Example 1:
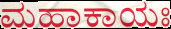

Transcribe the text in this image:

ಮಹಾಕಾಯಃ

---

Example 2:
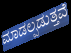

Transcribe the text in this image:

ಮಾಡಲ್ಪಡುತ್ತವೆ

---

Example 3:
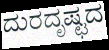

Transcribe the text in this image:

ದುರದೃಷ್ಟದ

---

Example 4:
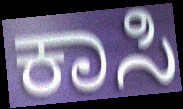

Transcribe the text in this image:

ಕಾಸಿ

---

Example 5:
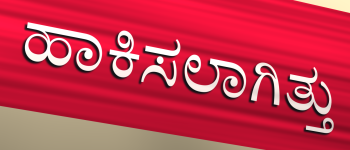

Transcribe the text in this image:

ಹಾಕಿಸಲಾಗಿತ್ತು